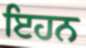
ਇਹਨ